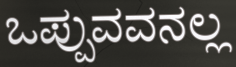
ಒಪ್ಪುವವನಲ್ಲ